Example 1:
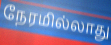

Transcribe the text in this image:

நேரமில்லாது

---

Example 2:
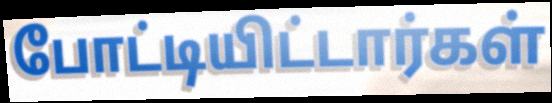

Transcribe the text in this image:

போட்டியிட்டார்கள்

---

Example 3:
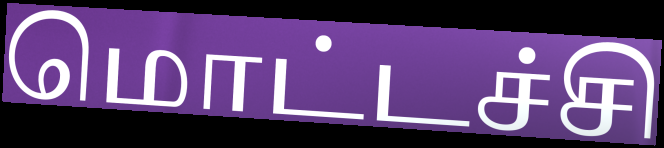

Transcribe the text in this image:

மொட்டச்சி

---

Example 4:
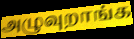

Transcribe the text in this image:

அழுவுறாங்க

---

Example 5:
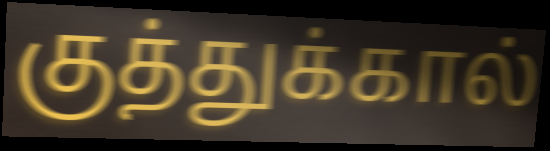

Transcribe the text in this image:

குத்துக்கால்